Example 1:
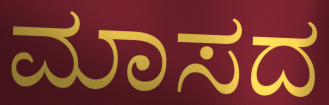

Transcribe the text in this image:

ಮಾಸದ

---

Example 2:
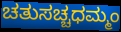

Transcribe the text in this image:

ಚತುಸಚ್ಚಧಮ್ಮಂ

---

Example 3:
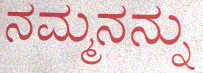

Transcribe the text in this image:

ನಮ್ಮನನ್ನು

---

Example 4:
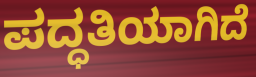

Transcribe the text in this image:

ಪದ್ಧತಿಯಾಗಿದೆ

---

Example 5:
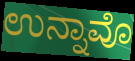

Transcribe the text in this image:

ಉನ್ನಾವೊ